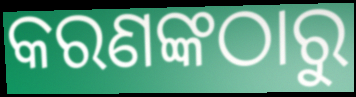
କରଣଙ୍କଠାରୁ